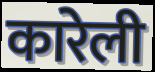
कारेली